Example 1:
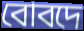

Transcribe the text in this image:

বোবদে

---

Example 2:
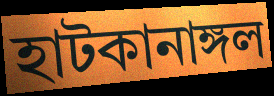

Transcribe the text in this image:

হাটকানাঙ্গল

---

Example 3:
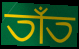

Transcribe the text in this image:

তাঁত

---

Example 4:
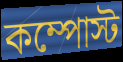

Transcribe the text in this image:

কম্পোস্ট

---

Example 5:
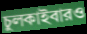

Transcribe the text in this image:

চুলকাইবারও